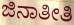
ಜಿನಾತೀತಿ